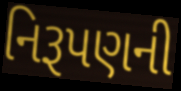
નિરૂપણની